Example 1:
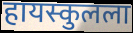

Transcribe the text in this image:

हायस्कुलला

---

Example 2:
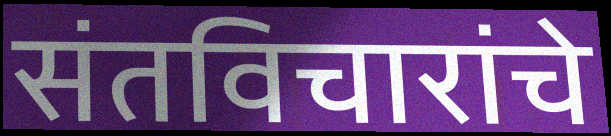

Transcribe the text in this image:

संतविचारांचे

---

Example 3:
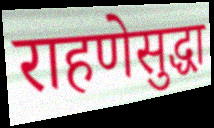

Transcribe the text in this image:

राहणेसुद्धा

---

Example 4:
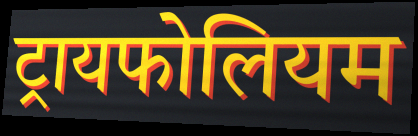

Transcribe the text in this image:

ट्रायफोलियम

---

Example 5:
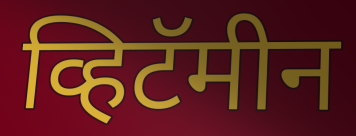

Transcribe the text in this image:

व्हिटॅमीन